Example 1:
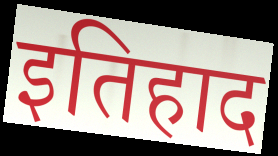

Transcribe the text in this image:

इतिहाद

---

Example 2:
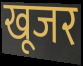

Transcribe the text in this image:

खूजर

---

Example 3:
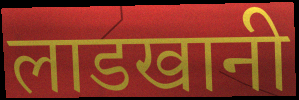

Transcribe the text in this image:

लाडखानी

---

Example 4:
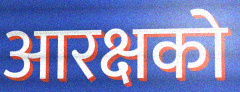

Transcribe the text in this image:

आरक्षको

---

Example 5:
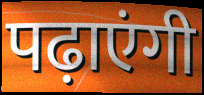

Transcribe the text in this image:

पढ़ाएंगी